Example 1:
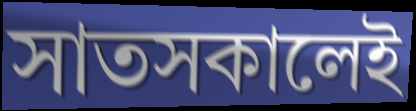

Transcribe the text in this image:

সাতসকালেই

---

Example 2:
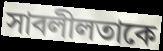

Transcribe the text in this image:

সাবলীলতাকে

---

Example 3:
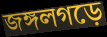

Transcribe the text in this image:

জঙ্গলগড়ে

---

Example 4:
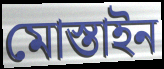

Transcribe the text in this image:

মোস্তাইন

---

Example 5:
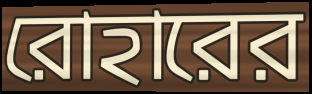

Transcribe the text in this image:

রোহারের